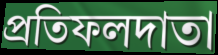
প্রতিফলদাতা